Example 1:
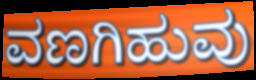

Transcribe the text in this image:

ವಣಗಿಹುವು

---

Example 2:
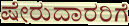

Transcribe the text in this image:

ಷೇರುದಾರರಿಗೆ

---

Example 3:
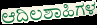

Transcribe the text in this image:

ಆದಿಲಶಾಹಿಗಳ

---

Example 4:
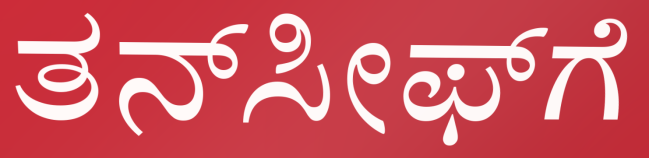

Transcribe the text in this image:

ತನ್‍ಸೀಫ್‍ಗೆ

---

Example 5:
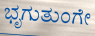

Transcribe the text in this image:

ಭೃಗುತುಂಗೇ